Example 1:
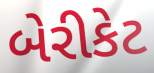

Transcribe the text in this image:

બેરીકેટ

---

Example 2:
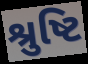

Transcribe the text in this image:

શ્રુષ્ટિ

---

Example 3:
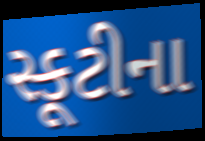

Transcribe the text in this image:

સ્કૂટીના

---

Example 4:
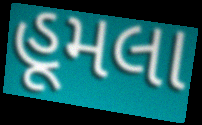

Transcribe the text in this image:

હૂમલા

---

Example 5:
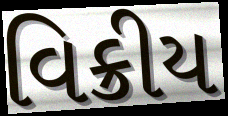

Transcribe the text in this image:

વિક્રીય